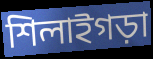
শিলাইগড়া